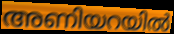
അണിയറയിൽ